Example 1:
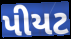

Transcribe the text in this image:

પીયટ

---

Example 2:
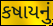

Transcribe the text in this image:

કષાયનું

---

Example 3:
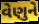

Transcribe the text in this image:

વેણુને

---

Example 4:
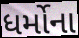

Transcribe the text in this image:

ધર્મોના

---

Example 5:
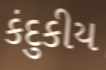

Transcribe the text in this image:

કંદુકીય